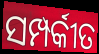
ସମ୍ପର୍କୀତ